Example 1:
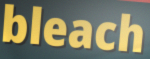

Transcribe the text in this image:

bleach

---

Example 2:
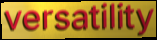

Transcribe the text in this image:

versatility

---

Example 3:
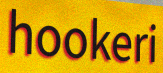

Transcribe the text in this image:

hookeri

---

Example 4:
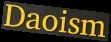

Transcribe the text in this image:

Daoism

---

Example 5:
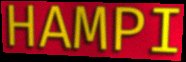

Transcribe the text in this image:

HAMPI